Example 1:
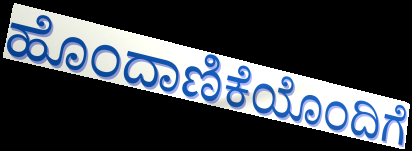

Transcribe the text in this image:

ಹೊಂದಾಣಿಕೆಯೊಂದಿಗೆ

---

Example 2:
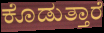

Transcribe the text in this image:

ಕೊಡುತ್ತಾರೆ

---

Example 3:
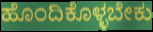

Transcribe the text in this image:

ಹೊಂದಿಕೊಳ್ಳಬೇಕು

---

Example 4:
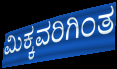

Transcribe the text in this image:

ಮಿಕ್ಕವರಿಗಿಂತ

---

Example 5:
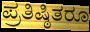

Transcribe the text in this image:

ಪ್ರತಿಷ್ಠಿತರೂ